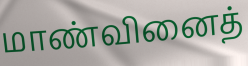
மாண்வினைத்